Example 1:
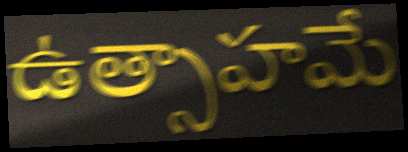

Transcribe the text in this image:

ఉత్సాహమే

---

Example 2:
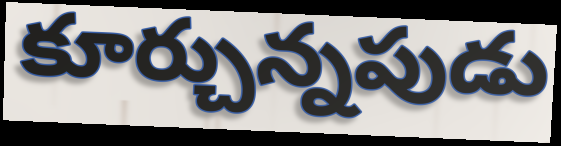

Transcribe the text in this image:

కూర్చున్నపుడు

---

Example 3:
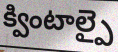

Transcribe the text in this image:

క్వింటాల్పై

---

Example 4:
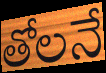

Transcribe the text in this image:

తోలనే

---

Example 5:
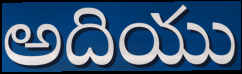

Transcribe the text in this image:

అదియు